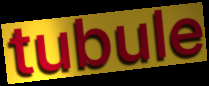
tubule